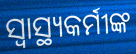
ସ୍ବାସ୍ଥ୍ୟକର୍ମୀଙ୍କ